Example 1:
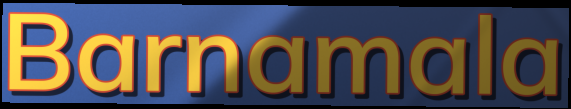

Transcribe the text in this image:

Barnamala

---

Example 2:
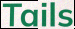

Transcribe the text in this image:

Tails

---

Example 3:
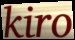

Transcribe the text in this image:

kiro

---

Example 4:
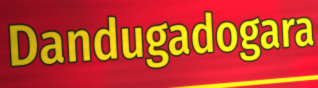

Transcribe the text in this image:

Dandugadogara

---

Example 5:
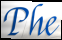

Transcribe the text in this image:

Phe